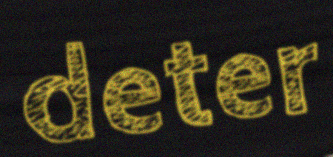
deter